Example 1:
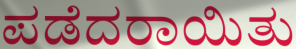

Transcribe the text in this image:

ಪಡೆದರಾಯಿತು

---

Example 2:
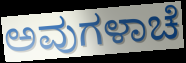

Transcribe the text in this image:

ಅವುಗಳಾಚೆ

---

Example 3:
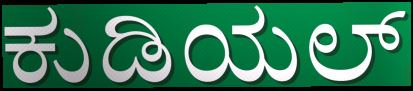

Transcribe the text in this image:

ಕುಡಿಯಲ್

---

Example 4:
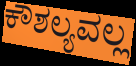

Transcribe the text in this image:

ಕೌಶಲ್ಯವಲ್ಲ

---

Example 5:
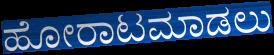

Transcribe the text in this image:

ಹೋರಾಟಮಾಡಲು